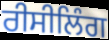
ਰੀਸੀਲਿੰਗ